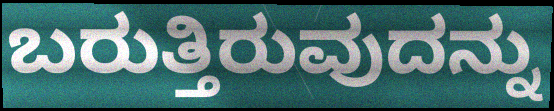
ಬರುತ್ತಿರುವುದನ್ನು